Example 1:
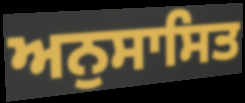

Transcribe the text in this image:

ਅਨੁਸਾਸਿਤ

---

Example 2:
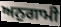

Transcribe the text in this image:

ਅਨੁਗਾਮੀ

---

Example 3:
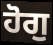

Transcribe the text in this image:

ਹੋਗੁ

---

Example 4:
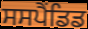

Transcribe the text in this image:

ਸਸਪੈਂਡਿਡ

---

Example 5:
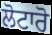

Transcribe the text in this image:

ਲੋਟਾਰੋ